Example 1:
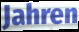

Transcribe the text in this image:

Jahren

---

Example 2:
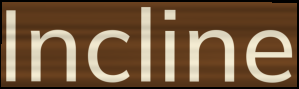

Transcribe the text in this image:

Incline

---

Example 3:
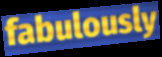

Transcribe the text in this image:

fabulously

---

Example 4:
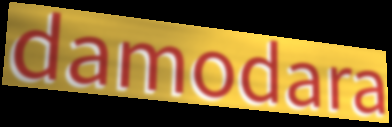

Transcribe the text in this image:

damodara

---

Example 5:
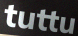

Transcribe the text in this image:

tuttu